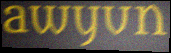
awyun